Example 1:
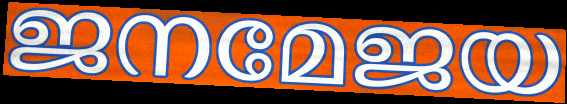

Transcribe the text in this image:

ജനമേജയ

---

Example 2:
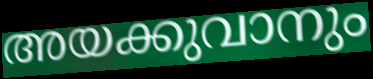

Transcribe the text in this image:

അയക്കുവാനും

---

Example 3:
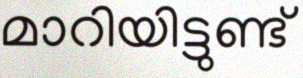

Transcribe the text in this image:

മാറിയിട്ടുണ്ട്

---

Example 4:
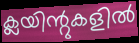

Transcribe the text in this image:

ക്ലയിന്റുകളിൽ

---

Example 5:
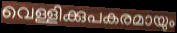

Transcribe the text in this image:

വെള്ളിക്കുപകരമായും